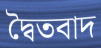
দ্বৈতবাদ